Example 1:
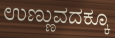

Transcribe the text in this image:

ಉಣ್ಣುವದಕ್ಕೂ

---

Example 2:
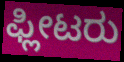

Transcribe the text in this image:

ಫ್ಲೀಟರು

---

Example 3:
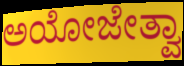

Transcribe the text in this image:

ಅಯೋಜೇತ್ವಾ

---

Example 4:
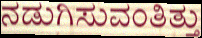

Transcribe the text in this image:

ನಡುಗಿಸುವಂತಿತ್ತು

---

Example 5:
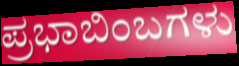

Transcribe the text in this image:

ಪ್ರಭಾಬಿಂಬಗಳು